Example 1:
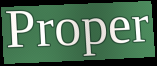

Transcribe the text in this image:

Proper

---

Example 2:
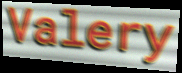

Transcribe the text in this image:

Valery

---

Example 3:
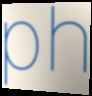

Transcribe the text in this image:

ph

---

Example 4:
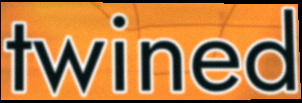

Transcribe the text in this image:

twined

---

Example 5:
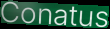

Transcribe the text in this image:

Conatus